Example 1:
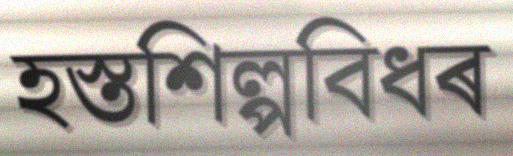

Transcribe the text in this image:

হস্তশিল্পবিধৰ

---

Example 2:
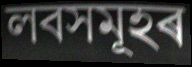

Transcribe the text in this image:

লবসমূহৰ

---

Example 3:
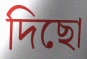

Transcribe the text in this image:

দিছো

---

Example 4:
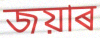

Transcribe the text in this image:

জয়াৰ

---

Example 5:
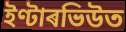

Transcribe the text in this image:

ইণ্টাৰভিউত